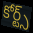
కోర్ట్స్